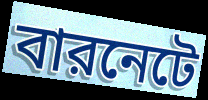
বারনেটে